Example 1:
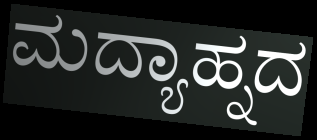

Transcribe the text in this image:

ಮದ್ಯಾಹ್ನದ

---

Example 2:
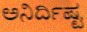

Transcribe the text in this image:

ಅನಿರ್ದಿಷ್ಟ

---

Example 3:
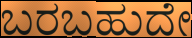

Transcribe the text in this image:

ಬರಬಹುದೇ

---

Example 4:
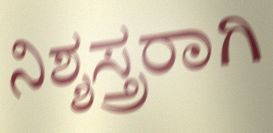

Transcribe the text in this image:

ನಿಶ್ಶಸ್ತ್ರರಾಗಿ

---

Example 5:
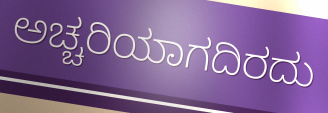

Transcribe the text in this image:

ಅಚ್ಚರಿಯಾಗದಿರದು